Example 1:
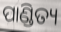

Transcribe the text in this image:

ପାଣ୍ଡିତ୍ୟ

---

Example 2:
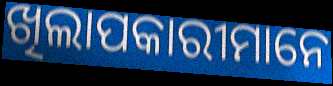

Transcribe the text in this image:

ଖିଲାପକାରୀମାନେ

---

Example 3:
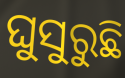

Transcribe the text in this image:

ଘୁସୁରୁଛି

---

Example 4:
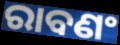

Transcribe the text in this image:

ରାବଣଂ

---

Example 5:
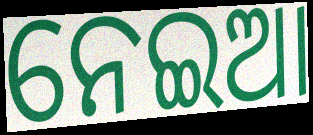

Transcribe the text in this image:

ନେଇଆ